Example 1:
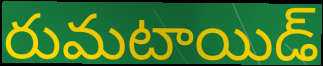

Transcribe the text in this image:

రుమటాయిడ్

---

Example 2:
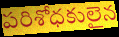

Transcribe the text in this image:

పరిశోధకులైన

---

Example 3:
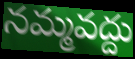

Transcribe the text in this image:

నమ్మవద్దు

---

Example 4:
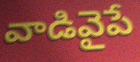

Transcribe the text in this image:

వాడివైపే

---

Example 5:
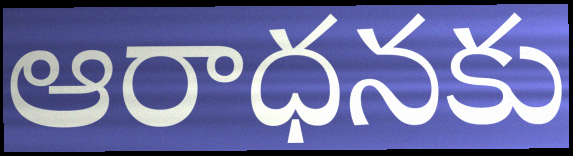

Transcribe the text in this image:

ఆరాధనకు